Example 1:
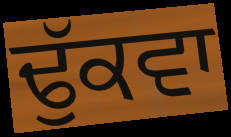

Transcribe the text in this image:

ਢੁੱਕਵਾ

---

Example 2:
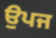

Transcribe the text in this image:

ਉਪਜ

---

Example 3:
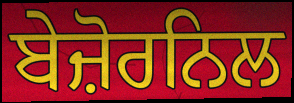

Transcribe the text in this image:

ਬੇਜ਼ੋਰਨਿਲ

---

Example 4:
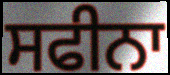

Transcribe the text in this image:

ਸਫੀਨਾ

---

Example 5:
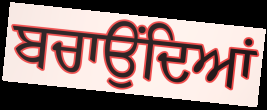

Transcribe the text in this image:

ਬਚਾਉਂਦਿਆਂ